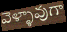
వెళ్ళావుగా